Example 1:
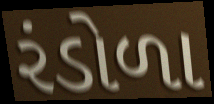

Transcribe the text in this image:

રંડોળા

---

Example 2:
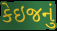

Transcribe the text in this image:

કેઇજનું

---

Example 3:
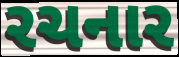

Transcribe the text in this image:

રચનાર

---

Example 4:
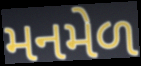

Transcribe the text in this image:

મનમેળ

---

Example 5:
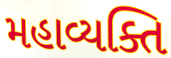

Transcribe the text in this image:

મહાવ્યક્તિ